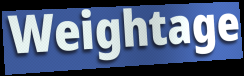
Weightage